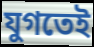
যুগতেই